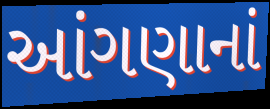
આંગણાનાં